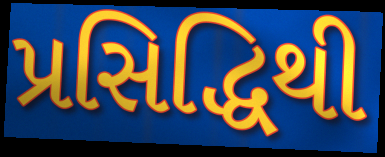
પ્રસિદ્ધિથી